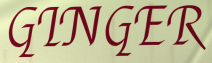
GINGER